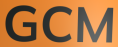
GCM